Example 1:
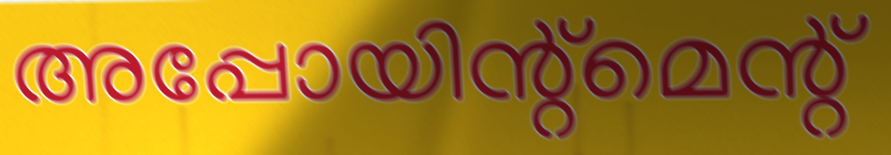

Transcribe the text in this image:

അപ്പോയിന്റ്മെന്റ്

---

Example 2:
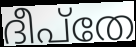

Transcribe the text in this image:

ദീപ്തേ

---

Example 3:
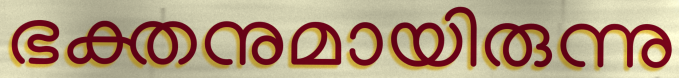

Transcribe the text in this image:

ഭക്തനുമായിരുന്നു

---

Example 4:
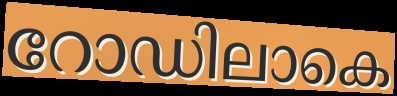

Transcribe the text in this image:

റോഡിലാകെ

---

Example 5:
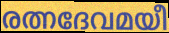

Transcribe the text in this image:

രത്നദേവമയീ